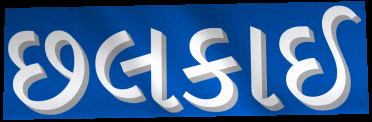
છલકાઈ